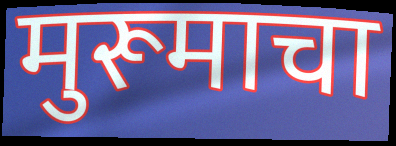
मुरूमाचा